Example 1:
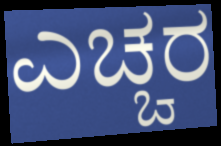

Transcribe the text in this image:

ಎಚ್ಚರ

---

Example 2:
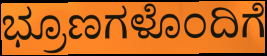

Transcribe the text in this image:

ಭ್ರೂಣಗಳೊಂದಿಗೆ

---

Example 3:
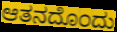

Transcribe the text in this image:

ಆತನದೊಂದು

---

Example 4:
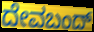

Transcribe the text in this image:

ದೇವಬಂದ್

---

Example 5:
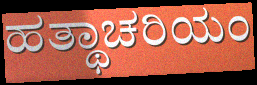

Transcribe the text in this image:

ಹತ್ಥಾಚರಿಯಂ